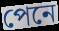
পেনে